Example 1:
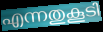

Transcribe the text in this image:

എന്നതുകൂടി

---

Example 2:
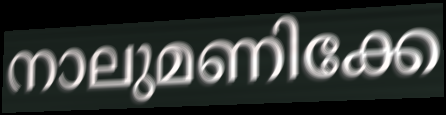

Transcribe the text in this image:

നാലുമണിക്കേ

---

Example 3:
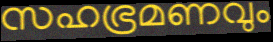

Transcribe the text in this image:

സഹഭ്രമണവും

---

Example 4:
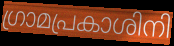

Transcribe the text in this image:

ഗ്രാമപ്രകാശിനി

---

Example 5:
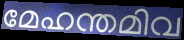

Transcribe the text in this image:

മേഹന്തമിവ